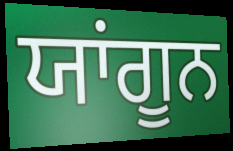
ਯਾਂਗੂਨ